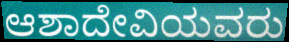
ಆಶಾದೇವಿಯವರು